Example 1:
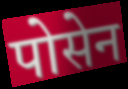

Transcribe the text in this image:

पोसेन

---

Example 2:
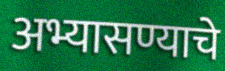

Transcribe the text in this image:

अभ्यासण्याचे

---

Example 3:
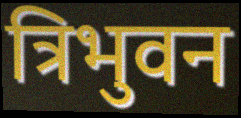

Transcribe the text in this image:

त्रिभुवन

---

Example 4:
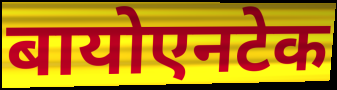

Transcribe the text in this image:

बायोएनटेक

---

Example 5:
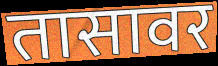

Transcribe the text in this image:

तासावर